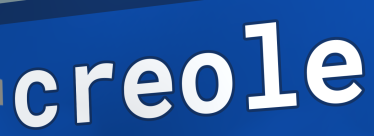
creole